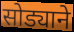
सोड्याने